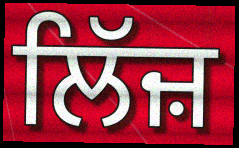
ਲਿੱਜ਼